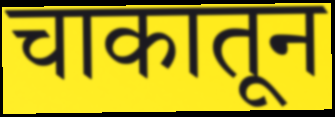
चाकातून